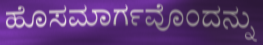
ಹೊಸಮಾರ್ಗವೊಂದನ್ನು